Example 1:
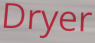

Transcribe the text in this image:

Dryer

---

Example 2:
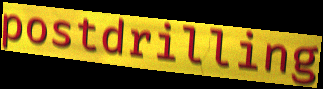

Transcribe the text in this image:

postdrilling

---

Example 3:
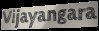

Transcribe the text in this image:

Vijayangara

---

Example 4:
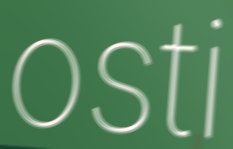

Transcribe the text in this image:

osti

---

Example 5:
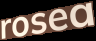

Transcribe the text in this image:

rosea